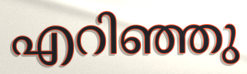
എറിഞ്ഞു